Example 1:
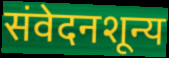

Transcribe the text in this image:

संवेदनशून्य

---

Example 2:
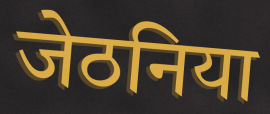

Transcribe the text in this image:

जेठनिया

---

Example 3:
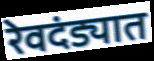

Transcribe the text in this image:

रेवदंड्यात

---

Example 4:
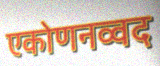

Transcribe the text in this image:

एकोणनव्वद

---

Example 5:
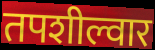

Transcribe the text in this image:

तपशील्वार